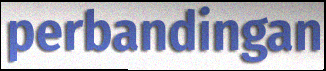
perbandingan